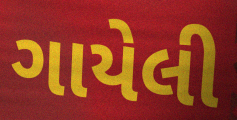
ગાયેલી